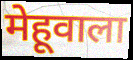
मेहूवाला